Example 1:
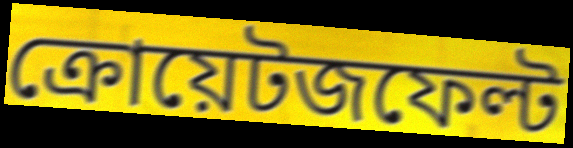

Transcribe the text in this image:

ক্রোয়েটজফেল্ট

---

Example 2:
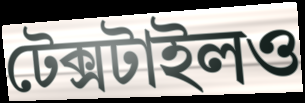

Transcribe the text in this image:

টেক্সটাইলও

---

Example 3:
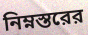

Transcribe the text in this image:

নিম্নস্তরের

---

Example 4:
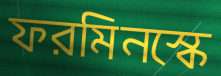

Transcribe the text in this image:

ফরমিনস্কে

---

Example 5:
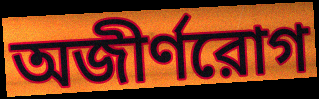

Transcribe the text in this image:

অজীর্ণরোগ